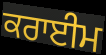
ਕਰਾਈਮ